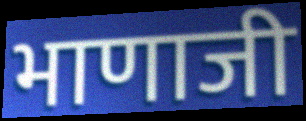
भाणाजी